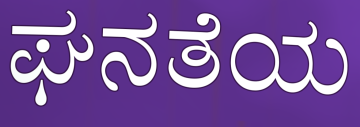
ಘನತೆಯ